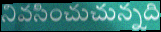
నివసించుచున్నది